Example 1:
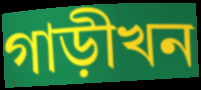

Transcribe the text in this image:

গাড়ীখন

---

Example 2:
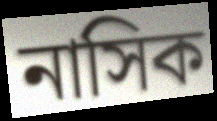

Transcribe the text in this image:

নাসিক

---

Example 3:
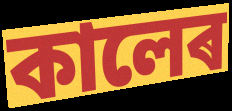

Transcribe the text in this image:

কালেৰ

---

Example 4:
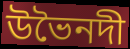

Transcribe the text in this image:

উভৈনদী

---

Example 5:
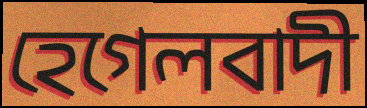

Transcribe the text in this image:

হেগেলবাদী